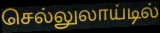
செல்லுலாய்டில்